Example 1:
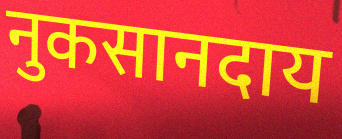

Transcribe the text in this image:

नुकसानदाय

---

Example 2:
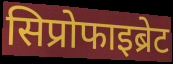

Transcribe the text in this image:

सिप्रोफाइब्रेट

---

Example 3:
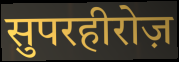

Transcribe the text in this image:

सुपरहीरोज़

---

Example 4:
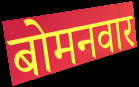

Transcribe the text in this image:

बोमनवार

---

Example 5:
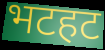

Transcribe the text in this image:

भटहट